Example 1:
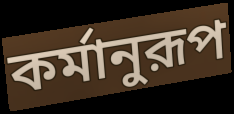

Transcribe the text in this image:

কর্মানুরূপ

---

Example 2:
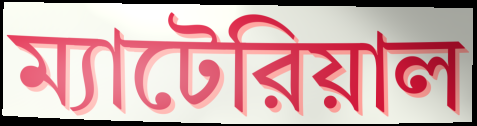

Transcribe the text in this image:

ম্যাটেরিয়াল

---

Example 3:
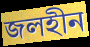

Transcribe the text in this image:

জলহীন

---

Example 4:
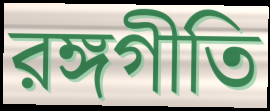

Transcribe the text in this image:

রঙ্গগীতি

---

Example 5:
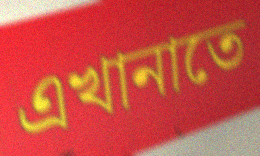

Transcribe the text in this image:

এখানাতে